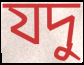
যদু